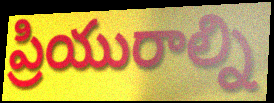
ప్రియురాల్ని